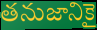
తనుజానికై